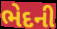
ભેદની